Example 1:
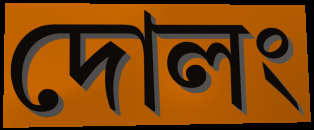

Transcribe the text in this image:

দোলং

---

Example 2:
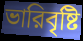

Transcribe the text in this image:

ভারিবৃষ্টি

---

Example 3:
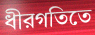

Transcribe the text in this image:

ধীরগতিতে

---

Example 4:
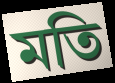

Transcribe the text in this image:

মতি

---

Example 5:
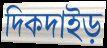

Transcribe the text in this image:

দিকদাইড়